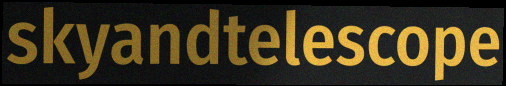
skyandtelescope